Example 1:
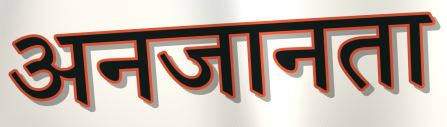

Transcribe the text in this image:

अनजानता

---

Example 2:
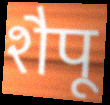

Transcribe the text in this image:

शैपू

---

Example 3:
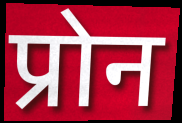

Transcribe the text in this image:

प्रोन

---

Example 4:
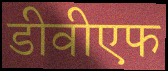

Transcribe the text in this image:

डीवीएफ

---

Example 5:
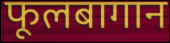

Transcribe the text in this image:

फूलबागान